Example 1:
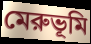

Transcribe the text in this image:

মেরুভূমি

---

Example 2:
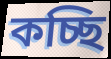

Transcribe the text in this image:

কচ্ছি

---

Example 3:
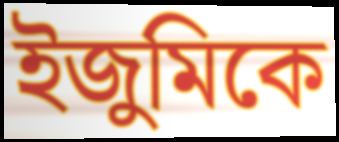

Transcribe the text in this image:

ইজুমিকে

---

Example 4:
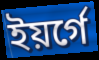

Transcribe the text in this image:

ইয়র্গে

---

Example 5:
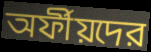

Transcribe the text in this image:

অর্ফীয়দের